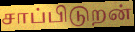
சாப்பிடுறன்